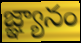
జ్ఞ్యానం